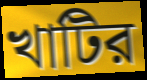
খাটির